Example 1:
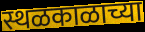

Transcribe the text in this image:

स्थळकाळाच्या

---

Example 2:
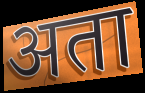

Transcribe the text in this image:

अता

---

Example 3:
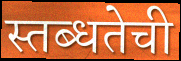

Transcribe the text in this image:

स्तब्धतेची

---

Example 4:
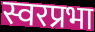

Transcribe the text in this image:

स्वरप्रभा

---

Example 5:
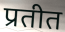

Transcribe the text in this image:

प्रतीत